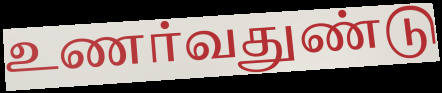
உணர்வதுண்டு